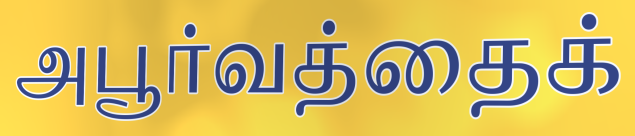
அபூர்வத்தைக்